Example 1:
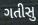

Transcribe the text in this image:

ગતીસુ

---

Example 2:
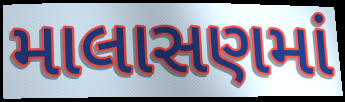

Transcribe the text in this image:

માલાસણમાં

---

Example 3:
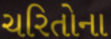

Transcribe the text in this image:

ચરિતોના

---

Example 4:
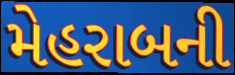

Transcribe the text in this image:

મેહરાબની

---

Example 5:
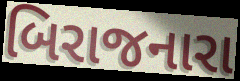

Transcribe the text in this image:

બિરાજનારા